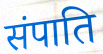
संपाति